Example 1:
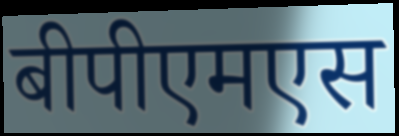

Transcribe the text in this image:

बीपीएमएस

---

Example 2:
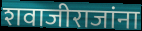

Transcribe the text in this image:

शवाजीराजांना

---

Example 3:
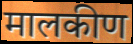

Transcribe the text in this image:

मालकीण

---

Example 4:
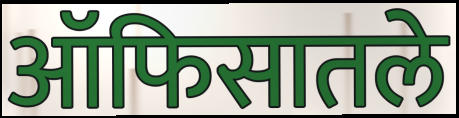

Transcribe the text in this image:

ऑफिसातले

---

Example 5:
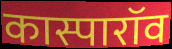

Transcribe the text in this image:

कास्पारॉव